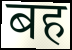
बह